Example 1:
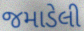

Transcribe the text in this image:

જમાડેલી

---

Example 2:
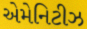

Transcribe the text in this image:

એમેનિટીઝ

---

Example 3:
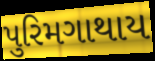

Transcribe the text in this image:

પુરિમગાથાય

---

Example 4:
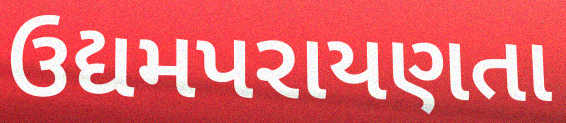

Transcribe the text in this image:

ઉદ્યમપરાયણતા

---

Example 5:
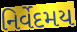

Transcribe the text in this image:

નિર્વેદમય